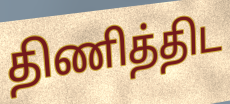
திணித்திட